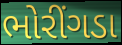
ભોરીંગડા